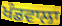
ਖੰਡਵਾਲਾ